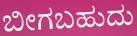
ಬೀಗಬಹುದು